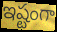
ఇష్టంగా